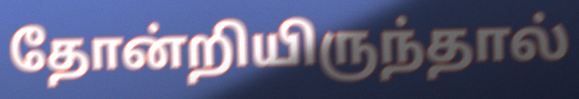
தோன்றியிருந்தால்